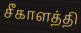
சீகாளத்தி